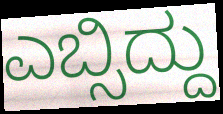
ಎಬ್ಸಿದ್ದು